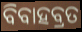
ବିବାହବ୍ରତ